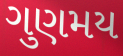
ગુણમય